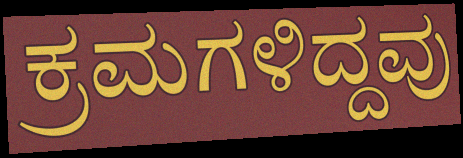
ಕ್ರಮಗಳಿದ್ದವು